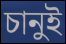
চানুই